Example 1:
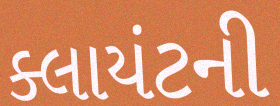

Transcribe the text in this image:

ક્લાયંટની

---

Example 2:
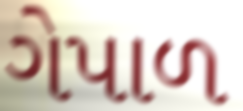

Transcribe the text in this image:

ગેપાળ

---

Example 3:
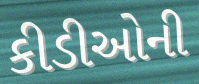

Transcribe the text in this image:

કીડીઓની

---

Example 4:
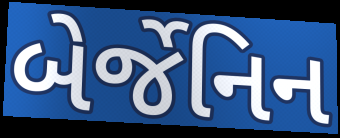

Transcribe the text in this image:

બેર્જેનિન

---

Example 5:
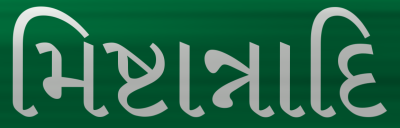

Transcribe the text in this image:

મિષ્ટાન્નાદિ